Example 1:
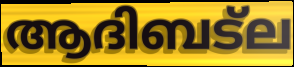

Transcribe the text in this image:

ആദിബട്ല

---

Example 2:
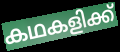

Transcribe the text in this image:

കഥകളിക്ക്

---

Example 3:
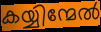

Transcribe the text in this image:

കയ്യിന്മേൽ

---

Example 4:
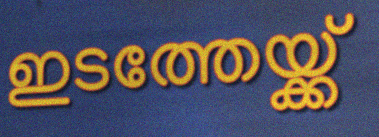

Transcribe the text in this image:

ഇടത്തേയ്ക്ക്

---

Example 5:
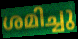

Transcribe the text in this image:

ശമിച്ചു